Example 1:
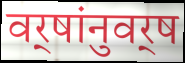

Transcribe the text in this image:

वर्षांनुवर्ष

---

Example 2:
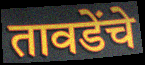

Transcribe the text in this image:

तावडेंचे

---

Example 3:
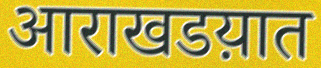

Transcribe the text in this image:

आराखडय़ात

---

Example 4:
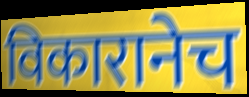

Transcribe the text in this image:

विकारानेच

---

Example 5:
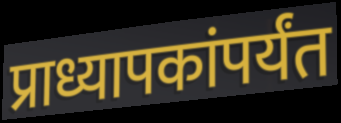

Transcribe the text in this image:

प्राध्यापकांपर्यंत